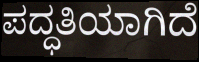
ಪದ್ಧತಿಯಾಗಿದೆ